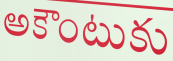
అకౌంటుకు